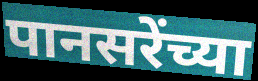
पानसरेंच्या